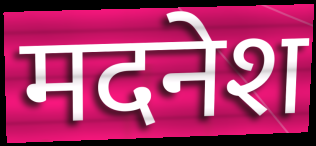
मदनेश